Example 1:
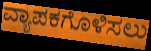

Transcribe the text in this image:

ವ್ಯಾಪಕಗೊಳಿಸಲು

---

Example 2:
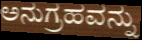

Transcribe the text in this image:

ಅನುಗ್ರಹವನ್ನು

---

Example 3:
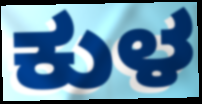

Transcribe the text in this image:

ಕುಳ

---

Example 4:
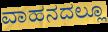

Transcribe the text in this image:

ವಾಹನದಲ್ಲೂ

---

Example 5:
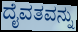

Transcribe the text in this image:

ದೈವತವನ್ನು